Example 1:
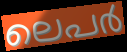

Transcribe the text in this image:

ലെപർ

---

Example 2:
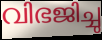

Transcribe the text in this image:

വിഭജിച്ചു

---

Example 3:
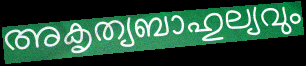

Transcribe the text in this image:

അകൃത്യബാഹുല്യവും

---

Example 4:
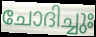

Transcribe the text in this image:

ചോദിച്ചുഃ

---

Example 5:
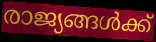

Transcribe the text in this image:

രാജ്യങ്ങൾക്ക്